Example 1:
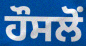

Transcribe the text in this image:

ਹੌਸਲੋਂ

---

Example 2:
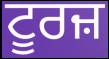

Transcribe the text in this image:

ਟੂਰਜ਼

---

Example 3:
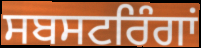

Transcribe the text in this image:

ਸਬਸਟਰਿੰਗਾਂ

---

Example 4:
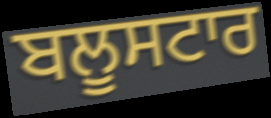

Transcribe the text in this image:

ਬਲੂਸਟਾਰ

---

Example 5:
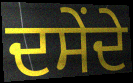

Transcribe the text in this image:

ਦਸੇਂਦੇ